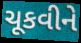
ચૂકવીને